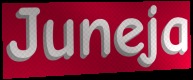
Juneja